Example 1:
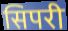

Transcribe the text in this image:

सिपरी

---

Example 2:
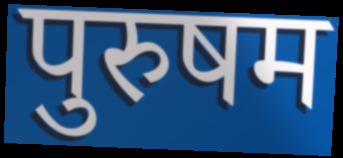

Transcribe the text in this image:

पुरुषम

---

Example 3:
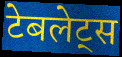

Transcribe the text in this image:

टेबलेट्स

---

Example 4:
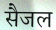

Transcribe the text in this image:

सैजल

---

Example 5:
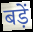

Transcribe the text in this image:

बड़ें